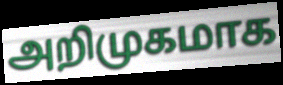
அறிமுகமாக